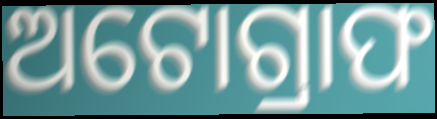
ଅଟୋଗ୍ରାଫ